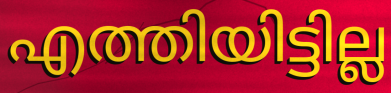
എത്തിയിട്ടില്ല